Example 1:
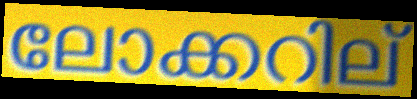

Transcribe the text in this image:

ലോക്കറില്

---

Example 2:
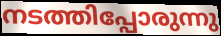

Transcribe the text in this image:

നടത്തിപ്പോരുന്നു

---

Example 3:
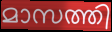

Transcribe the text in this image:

മാസത്തി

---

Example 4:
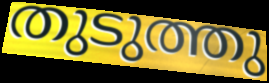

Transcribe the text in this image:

തുടുത്തു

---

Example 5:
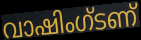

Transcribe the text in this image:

വാഷിംഗ്ടണ്